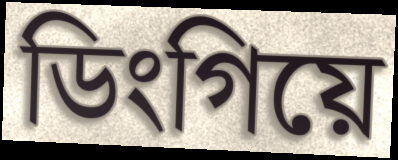
ডিংগিয়ে